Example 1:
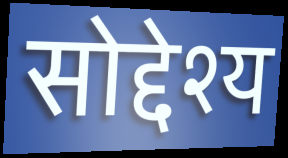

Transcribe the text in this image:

सोद्देश्य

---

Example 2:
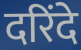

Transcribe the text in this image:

दरिंदे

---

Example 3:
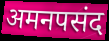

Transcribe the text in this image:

अमनपसंद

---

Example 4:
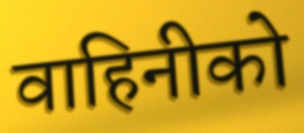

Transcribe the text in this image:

वाहिनीको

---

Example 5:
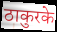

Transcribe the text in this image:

ठाकुरके